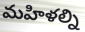
మహిళల్ని